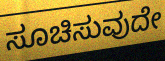
ಸೂಚಿಸುವುದೇ